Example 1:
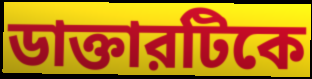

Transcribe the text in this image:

ডাক্তারটিকে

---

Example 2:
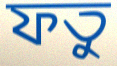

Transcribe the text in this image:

ফতু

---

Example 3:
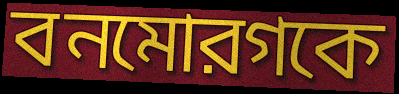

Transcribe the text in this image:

বনমোরগকে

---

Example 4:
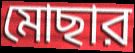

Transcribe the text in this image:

মোছার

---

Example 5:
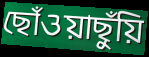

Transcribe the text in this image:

ছোঁওয়াছুঁয়ি